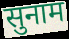
सुनाम